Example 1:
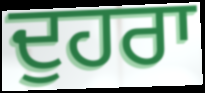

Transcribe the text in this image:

ਦੁਹਰਾ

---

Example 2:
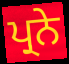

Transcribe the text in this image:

ਪ੍ਰਨੇ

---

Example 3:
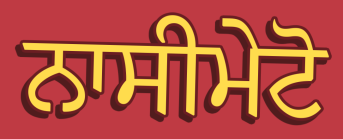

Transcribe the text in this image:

ਨਾਸੀਮੇਟੋ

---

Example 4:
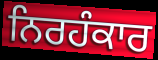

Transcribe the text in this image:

ਨਿਰਹੰਕਾਰ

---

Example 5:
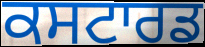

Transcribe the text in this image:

ਕਸਟਾਰਡ